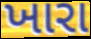
ખારા